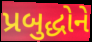
પ્રબુદ્ધોને